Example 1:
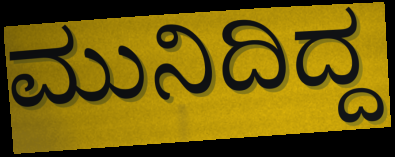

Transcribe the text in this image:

ಮುನಿದಿದ್ದ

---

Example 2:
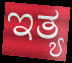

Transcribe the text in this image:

ಇತ್ಯ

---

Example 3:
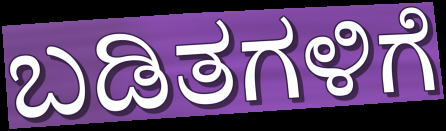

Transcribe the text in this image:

ಬಡಿತಗಳಿಗೆ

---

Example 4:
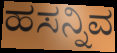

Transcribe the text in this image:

ಹಸನ್ನಿವ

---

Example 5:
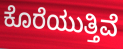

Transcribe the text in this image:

ಕೊರೆಯುತ್ತಿವೆ